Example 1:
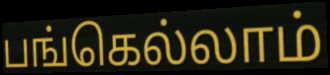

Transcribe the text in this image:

பங்கெல்லாம்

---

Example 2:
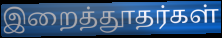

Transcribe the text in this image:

இறைத்தூதர்கள்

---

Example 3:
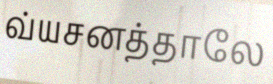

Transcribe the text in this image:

வ்யசனத்தாலே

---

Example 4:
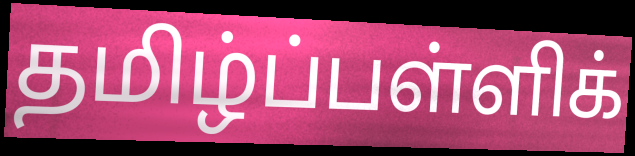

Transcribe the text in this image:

தமிழ்ப்பள்ளிக்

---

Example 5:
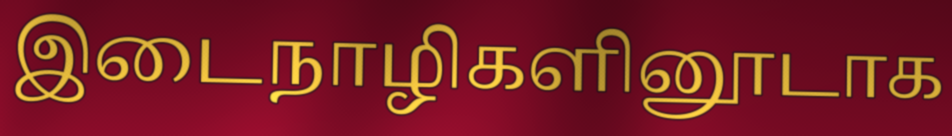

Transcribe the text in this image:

இடைநாழிகளினூடாக